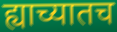
ह्याच्यातच